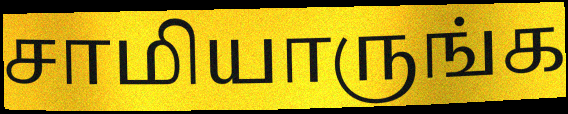
சாமியாருங்க